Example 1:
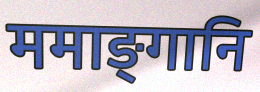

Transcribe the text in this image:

ममाङ्गानि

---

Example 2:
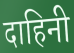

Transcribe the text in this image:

दाहिनी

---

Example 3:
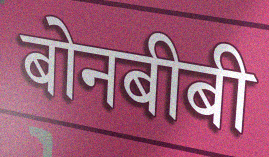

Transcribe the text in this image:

बोनबीबी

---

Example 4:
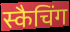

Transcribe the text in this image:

स्कैचिंग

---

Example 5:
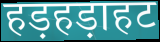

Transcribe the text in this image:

हड़हड़ाहट